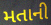
મતાની